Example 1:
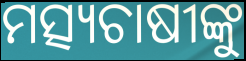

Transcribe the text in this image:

ମତ୍ସ୍ୟଚାଷୀଙ୍କୁ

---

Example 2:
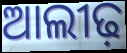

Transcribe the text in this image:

ଆଲୀଢ଼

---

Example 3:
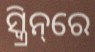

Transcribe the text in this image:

ସ୍କ୍ରିନ୍‌ରେ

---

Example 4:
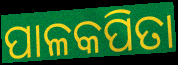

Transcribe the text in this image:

ପାଳକପିତା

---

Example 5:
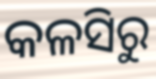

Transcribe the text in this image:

କଳସିରୁ